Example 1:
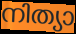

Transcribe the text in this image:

നിത്യാ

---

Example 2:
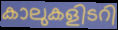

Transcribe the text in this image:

കാലുകളിടറി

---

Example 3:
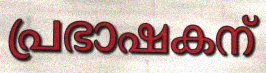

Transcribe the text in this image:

പ്രഭാഷകന്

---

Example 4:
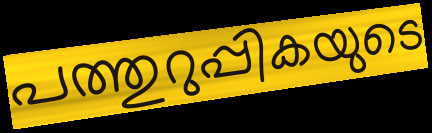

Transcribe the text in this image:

പത്തുറുപ്പികയുടെ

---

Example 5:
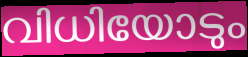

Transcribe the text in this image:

വിധിയോടും